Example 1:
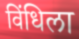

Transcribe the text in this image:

विंधिला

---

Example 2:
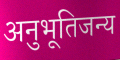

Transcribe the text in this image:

अनुभूतिजन्य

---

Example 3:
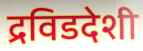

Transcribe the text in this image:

द्रविडदेशी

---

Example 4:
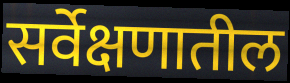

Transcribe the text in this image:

सर्वेक्षणातील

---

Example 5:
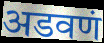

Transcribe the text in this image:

अडवणं